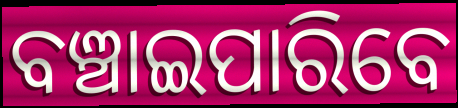
ବଞ୍ଚାଇପାରିବେ